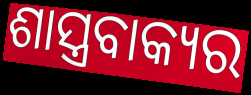
ଶାସ୍ତ୍ରବାକ୍ୟର